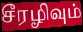
சீரழிவும்